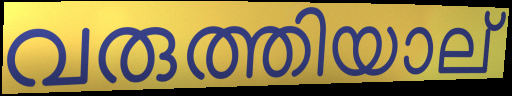
വരുത്തിയാല്